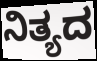
ನಿತ್ಯದ